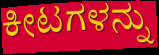
ಕೀಟಗಳನ್ನು